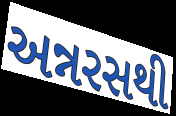
અન્નરસથી